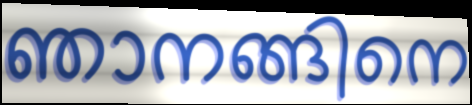
ഞാനങ്ങിനെ